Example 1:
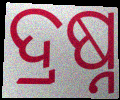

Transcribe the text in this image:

ଦ୍ରଷ୍ନ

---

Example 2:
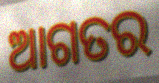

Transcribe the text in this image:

ଆଗତର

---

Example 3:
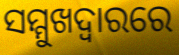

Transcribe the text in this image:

ସମ୍ମୁଖଦ୍ୱାରରେ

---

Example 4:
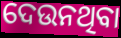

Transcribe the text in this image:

ଦେଉନଥିବା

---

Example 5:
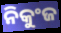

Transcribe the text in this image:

ନିକୁଂଜ